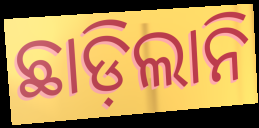
ଛାଡ଼ିଲାନି